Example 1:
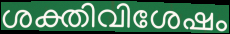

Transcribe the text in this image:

ശക്തിവിശേഷം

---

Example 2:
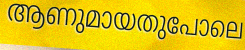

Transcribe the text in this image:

ആണുമായതുപോലെ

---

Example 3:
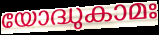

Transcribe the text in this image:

യോദ്ധുകാമഃ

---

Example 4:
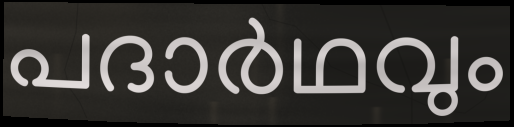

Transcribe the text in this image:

പദാർഥവും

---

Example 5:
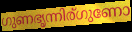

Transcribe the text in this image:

ഗുണഭൃന്നിര്ഗുണോ